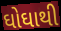
ઘોઘાથી